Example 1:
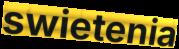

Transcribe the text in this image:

swietenia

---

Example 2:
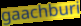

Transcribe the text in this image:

gaachburi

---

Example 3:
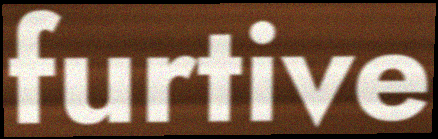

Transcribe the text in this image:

furtive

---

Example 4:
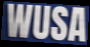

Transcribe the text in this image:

WUSA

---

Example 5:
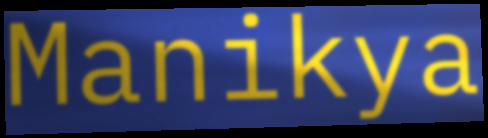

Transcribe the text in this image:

Manikya